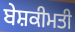
ਬੇਸ਼ਕੀਮਤੀ